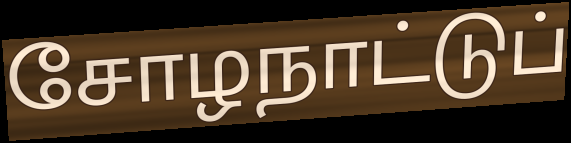
சோழநாட்டுப்